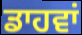
ਡਾਹਵਾਂ